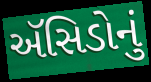
ઍસિડોનું